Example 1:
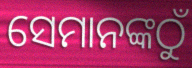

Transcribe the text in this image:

ସେମାନଙ୍କଠୁଁ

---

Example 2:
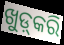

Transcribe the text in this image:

ଖୁଡ଼୍‍କରି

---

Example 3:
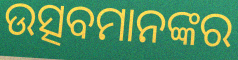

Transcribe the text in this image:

ଉତ୍ସବମାନଙ୍କର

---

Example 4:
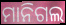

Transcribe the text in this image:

ମାନିଗଲ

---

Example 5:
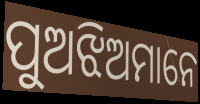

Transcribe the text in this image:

ପୁଅଝିଅମାନେ